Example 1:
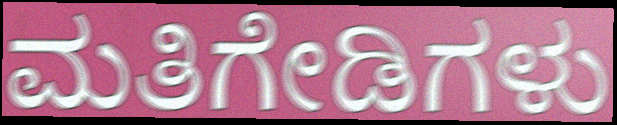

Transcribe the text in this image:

ಮತಿಗೇಡಿಗಳು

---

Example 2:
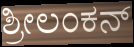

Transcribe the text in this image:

ಶ್ರೀಲಂಕನ್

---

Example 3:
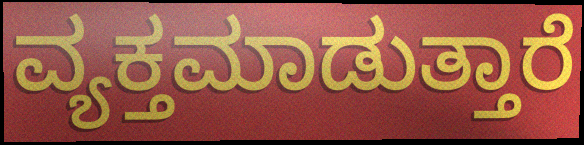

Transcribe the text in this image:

ವ್ಯಕ್ತಮಾಡುತ್ತಾರೆ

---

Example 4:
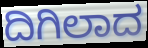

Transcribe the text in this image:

ದಿಗಿಲಾದ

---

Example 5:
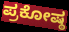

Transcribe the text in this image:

ಪ್ರಕೋಷ್ಠ